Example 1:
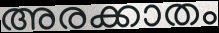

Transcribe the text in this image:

അരക്കാതം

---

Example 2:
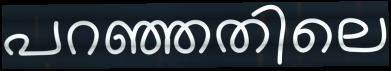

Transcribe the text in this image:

പറഞ്ഞതിലെ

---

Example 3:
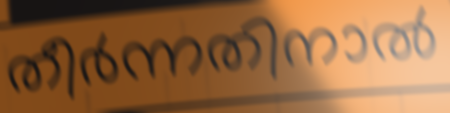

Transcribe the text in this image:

തീർന്നതിനാൽ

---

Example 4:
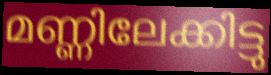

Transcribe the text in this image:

മണ്ണിലേക്കിട്ടു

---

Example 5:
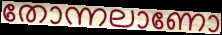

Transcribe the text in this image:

തോന്നലാണോ